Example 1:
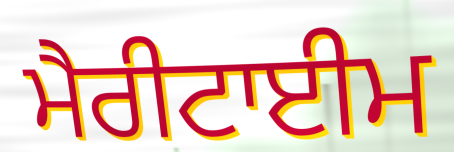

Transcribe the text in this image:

ਮੈਰੀਟਾਈਮ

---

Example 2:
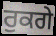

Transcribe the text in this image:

ਰੁਕਗੇ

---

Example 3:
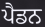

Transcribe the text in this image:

ਪੈਡਨ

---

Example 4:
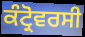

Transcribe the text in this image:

ਕੰਟ੍ਰੋਵਰਸੀ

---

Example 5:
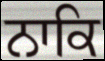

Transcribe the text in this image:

ਨਾਕਿ